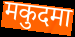
मकुदमा